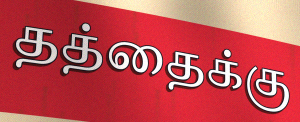
தத்தைக்கு